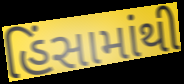
હિંસામાંથી